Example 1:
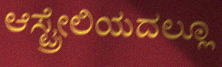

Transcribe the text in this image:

ಆಸ್ಟ್ರೇಲಿಯದಲ್ಲೂ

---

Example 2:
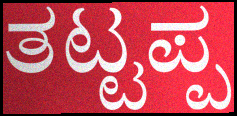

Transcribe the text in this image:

ತಟ್ಟಪ್ಪ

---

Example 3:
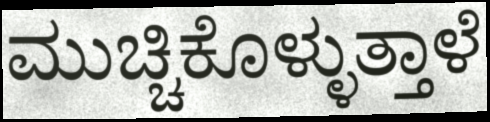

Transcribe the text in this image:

ಮುಚ್ಚಿಕೊಳ್ಳುತ್ತಾಳೆ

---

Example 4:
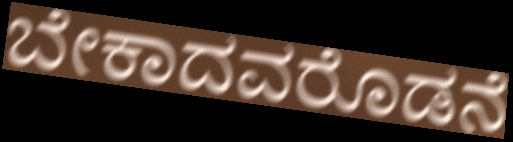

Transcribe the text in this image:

ಬೇಕಾದವರೊಡನೆ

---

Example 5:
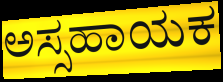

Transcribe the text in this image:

ಅಸ್ಸಹಾಯಕ